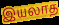
இயலாத